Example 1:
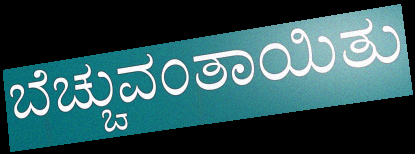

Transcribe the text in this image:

ಬೆಚ್ಚುವಂತಾಯಿತು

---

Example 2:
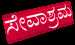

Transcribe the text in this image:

ಸೇವಾಶ್ರಮ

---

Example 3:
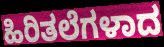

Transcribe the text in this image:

ಹಿರಿತಲೆಗಳಾದ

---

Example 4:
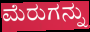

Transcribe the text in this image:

ಮೆರುಗನ್ನು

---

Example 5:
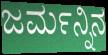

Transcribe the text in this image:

ಜರ್ಮನ್ನಿನ